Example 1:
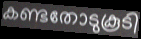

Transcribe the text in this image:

കണ്ടതോടുകൂടി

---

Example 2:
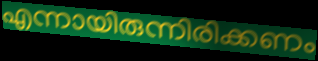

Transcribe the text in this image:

എന്നായിരുന്നിരിക്കണം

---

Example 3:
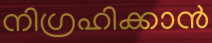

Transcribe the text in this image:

നിഗ്രഹിക്കാൻ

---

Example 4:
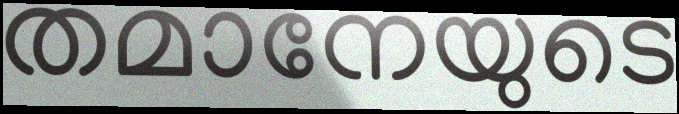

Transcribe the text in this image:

തമാനേയുടെ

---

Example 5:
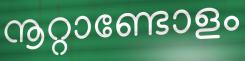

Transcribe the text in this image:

നൂറ്റാണ്ടോളം